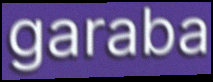
garaba